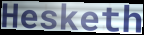
Hesketh